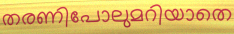
തരണിപോലുമറിയാതെ